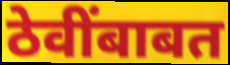
ठेवींबाबत